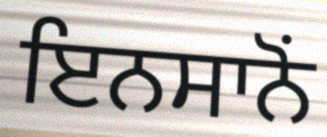
ਇਨਸਾਨੋਂ